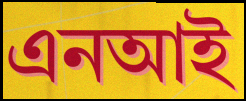
এনআই